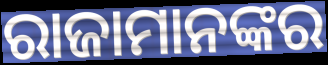
ରାଜାମାନଙ୍କର